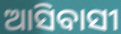
ଆସିବାସୀ